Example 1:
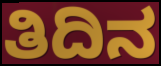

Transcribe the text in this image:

ತಿದಿನ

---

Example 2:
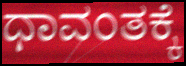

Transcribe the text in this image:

ಧಾವಂತಕ್ಕೆ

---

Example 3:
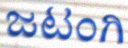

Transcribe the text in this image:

ಜಟಂಗಿ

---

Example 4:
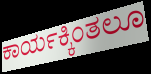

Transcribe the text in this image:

ಕಾರ್ಯಕ್ಕಿಂತಲೂ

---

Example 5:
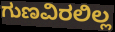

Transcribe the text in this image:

ಗುಣವಿರಲಿಲ್ಲ